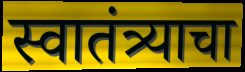
स्वातंत्र्याचा